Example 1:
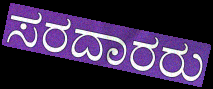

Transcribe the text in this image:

ಸರದಾರರು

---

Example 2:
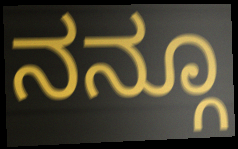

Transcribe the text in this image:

ನನ್ಗೂ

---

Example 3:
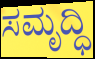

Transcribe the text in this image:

ಸಮೃದ್ಧಿ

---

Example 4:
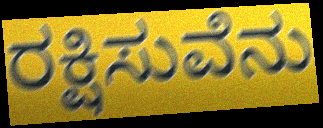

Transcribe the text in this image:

ರಕ್ಷಿಸುವೆನು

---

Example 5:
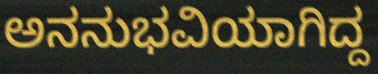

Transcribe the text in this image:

ಅನನುಭವಿಯಾಗಿದ್ದ